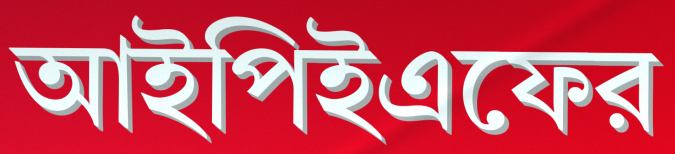
আইপিইএফের